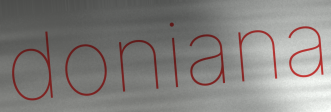
doniana